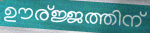
ഊര്ജ്ജത്തിന്